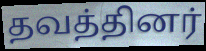
தவத்தினர்